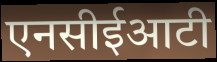
एनसीईआटी